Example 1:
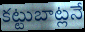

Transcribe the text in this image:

కట్టుబాట్లనే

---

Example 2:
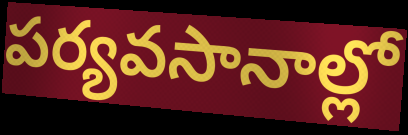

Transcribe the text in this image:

పర్యవసానాల్లో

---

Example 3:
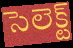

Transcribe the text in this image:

సెలెక్ట్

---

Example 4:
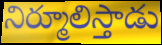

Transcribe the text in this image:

నిర్మూలిస్తాడు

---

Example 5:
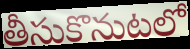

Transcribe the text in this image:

తీసుకొనుటలో